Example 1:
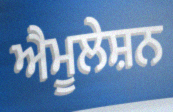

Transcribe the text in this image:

ਐਮੂਲੇਸ਼ਨ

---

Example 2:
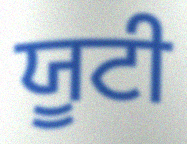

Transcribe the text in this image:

ਯੂਟੀ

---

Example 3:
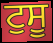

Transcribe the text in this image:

ਟੁਸੂ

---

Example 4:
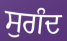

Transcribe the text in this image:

ਸੁਗੰਦ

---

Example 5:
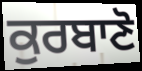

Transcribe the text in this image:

ਕੁਰਬਾਣੋ